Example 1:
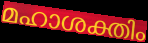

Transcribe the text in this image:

മഹാശക്തിം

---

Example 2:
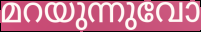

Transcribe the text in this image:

മറയുന്നുവോ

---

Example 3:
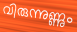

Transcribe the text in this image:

വിരുന്നുണ്ണും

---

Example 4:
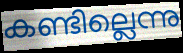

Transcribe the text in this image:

കണ്ടില്ലെന്നു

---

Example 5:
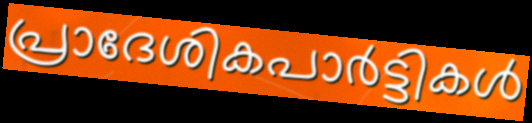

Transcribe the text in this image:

പ്രാദേശികപാർട്ടികൾ